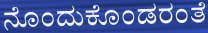
ನೊಂದುಕೊಂಡರಂತೆ